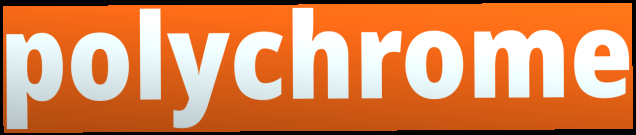
polychrome